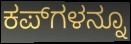
ಕಪ್‌ಗಳನ್ನೂ